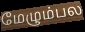
மேழும்பல